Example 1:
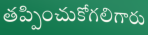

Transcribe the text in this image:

తప్పించుకోగలిగారు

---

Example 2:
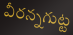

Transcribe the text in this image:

వీరన్నగుట్ట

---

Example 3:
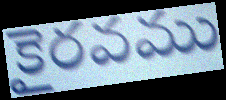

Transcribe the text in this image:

కైరవము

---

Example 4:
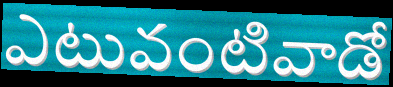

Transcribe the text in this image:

ఎటువంటివాడో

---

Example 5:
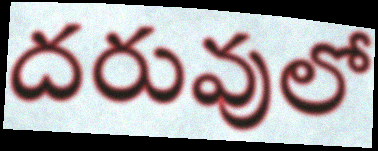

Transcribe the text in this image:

దరువులో